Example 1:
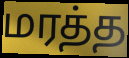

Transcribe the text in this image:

மரத்த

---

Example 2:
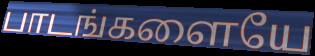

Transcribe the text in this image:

பாடங்களையே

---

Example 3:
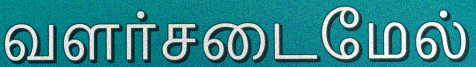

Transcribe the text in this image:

வளர்சடைமேல்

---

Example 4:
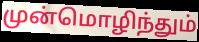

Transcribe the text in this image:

முன்மொழிந்தும்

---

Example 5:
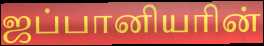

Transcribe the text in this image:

ஜப்பானியரின்